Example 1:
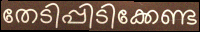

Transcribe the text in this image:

തേടിപ്പിടിക്കേണ്ട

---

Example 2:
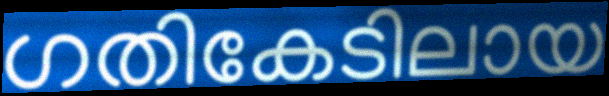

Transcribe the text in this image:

ഗതികേടിലായ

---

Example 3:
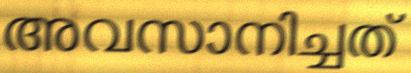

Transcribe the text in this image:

അവസാനിച്ചത്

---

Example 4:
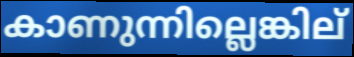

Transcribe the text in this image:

കാണുന്നില്ലെങ്കില്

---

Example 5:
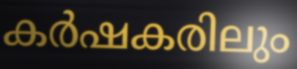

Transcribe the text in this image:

കർഷകരിലും